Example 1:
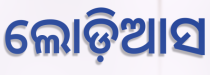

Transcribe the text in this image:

ଲୋଡ଼ିଆସ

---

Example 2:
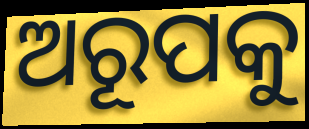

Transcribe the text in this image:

ଅରୂପକୁ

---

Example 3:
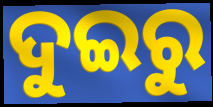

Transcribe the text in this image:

ଦୁଇରୁ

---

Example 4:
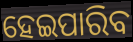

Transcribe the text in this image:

ହେଇପାରିବ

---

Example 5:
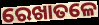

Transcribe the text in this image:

ରେଖାତଳେ